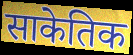
साकेतिक